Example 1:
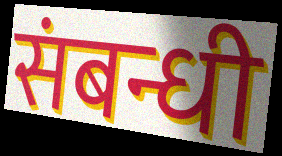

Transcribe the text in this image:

संबन्‍धी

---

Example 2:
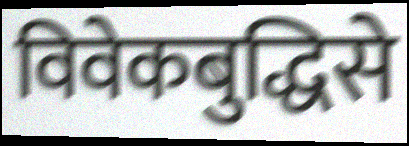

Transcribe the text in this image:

विवेकबुद्धिसे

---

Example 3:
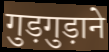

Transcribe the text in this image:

गुड़गुड़ाने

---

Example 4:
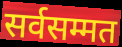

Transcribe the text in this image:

सर्वसम्मत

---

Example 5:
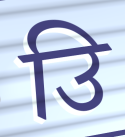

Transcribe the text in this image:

उि